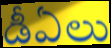
డీఏలు